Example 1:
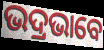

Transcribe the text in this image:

ଭଦ୍ରଭାବେ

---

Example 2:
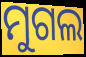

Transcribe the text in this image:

ମୁଗଲ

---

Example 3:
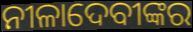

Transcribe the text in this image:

ନୀଳାଦେବୀଙ୍କର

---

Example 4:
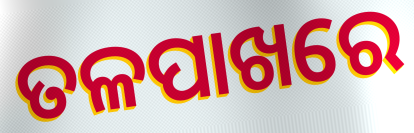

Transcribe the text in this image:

ତଳପାଖରେ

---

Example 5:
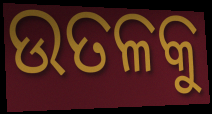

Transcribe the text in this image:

ଉତଳକୁ